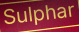
Sulphar